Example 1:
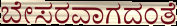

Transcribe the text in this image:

ಬೇಸರವಾಗದಂತೆ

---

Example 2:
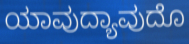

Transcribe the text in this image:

ಯಾವುದ್ಯಾವುದೊ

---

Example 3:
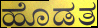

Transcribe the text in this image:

ಹೊಡತ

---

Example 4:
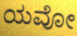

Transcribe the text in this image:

ಯವೋ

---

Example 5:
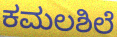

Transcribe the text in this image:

ಕಮಲಶಿಲೆ